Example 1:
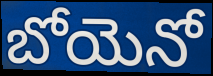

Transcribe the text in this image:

బోయెనో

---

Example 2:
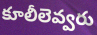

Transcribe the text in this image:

కూలీలెవ్వరు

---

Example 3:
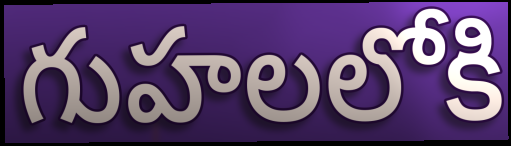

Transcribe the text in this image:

గుహలలోకి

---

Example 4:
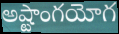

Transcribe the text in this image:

అష్టాంగయోగ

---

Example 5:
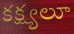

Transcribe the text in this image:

కక్ష్యలూ